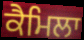
ਕੈਮਿਲਾ